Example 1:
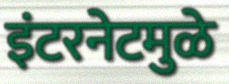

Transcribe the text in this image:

इंटरनेटमुळे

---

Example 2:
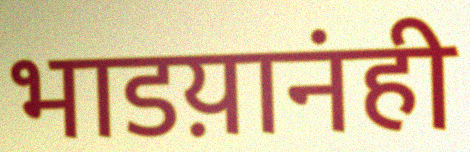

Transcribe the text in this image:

भाडय़ानंही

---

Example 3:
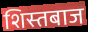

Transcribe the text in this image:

शिस्तबाज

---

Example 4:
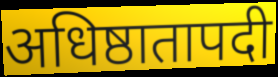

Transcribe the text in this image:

अधिष्ठातापदी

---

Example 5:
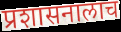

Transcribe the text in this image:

प्रशासनालाच